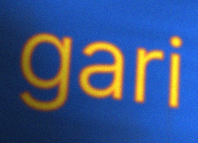
gari